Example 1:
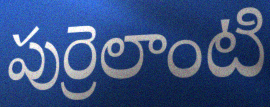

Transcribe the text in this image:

పుర్రెలాంటి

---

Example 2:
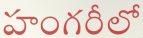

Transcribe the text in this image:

హంగరీలో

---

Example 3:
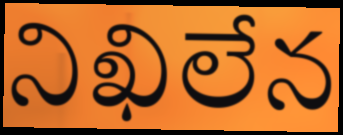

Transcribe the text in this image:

నిఖిలేన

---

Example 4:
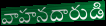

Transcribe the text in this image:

వాహనదారుడి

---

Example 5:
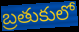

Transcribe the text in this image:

బ్రతుకులో